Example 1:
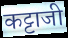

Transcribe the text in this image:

कट्टाजी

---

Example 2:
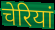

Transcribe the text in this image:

चेरियां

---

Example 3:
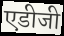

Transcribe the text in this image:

एडीजी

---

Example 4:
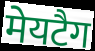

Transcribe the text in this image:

मेयटैग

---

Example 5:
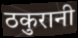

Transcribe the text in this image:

ठकुरानी